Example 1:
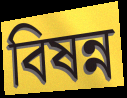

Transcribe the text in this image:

বিষন্ন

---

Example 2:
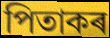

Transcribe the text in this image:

পিতাকৰ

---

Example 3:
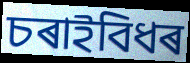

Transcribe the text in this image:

চৰাইবিধৰ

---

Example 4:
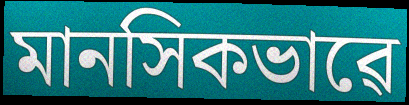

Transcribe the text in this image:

মানসিকভাৱে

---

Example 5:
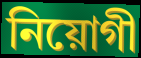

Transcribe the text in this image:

নিয়োগী